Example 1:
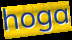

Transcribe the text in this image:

hoga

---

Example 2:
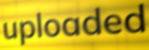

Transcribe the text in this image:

uploaded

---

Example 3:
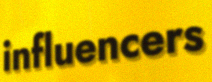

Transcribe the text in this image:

influencers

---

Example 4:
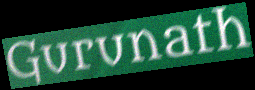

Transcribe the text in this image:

Gurunath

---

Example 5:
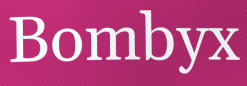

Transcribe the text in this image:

Bombyx